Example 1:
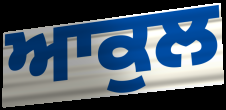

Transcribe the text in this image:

ਆਕੁਲ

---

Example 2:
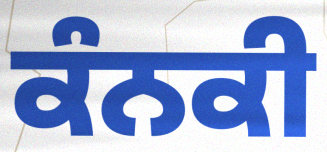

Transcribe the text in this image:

ਕੰਨਕੀ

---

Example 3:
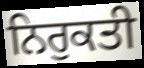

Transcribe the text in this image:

ਨਿਰੁਕਤੀ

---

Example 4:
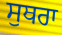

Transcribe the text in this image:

ਸੁਥਰਾ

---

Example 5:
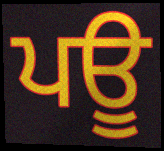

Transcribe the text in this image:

ਪਊ